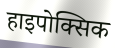
हाइपोक्सिक